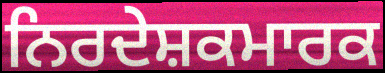
ਨਿਰਦੇਸ਼ਕਮਾਰਕ